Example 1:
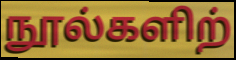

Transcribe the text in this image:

நூல்களிற்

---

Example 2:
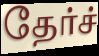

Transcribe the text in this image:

தேர்ச்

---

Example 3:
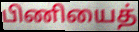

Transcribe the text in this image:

பிணியைத்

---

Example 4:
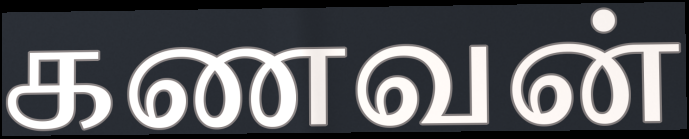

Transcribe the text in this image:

கணவன்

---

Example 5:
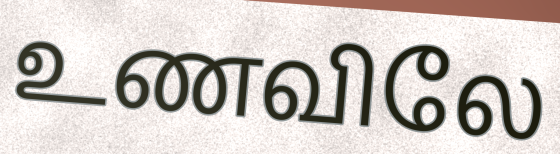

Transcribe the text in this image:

உணவிலே